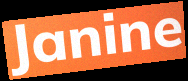
Janine